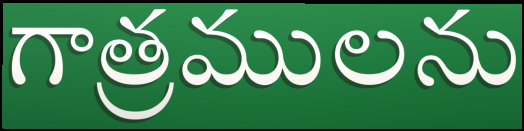
గాత్రములను